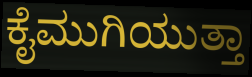
ಕೈಮುಗಿಯುತ್ತಾ